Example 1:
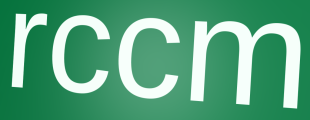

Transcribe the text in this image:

rccm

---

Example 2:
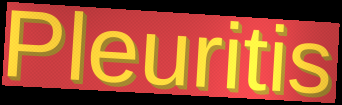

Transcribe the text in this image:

Pleuritis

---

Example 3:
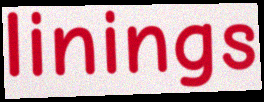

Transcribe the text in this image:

linings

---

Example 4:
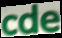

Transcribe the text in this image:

cde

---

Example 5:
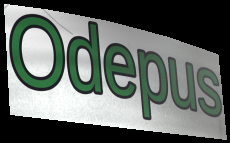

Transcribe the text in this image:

Odepus